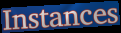
Instances